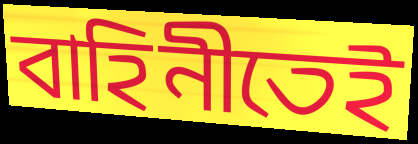
বাহিনীতেই